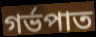
গৰ্ভপাত